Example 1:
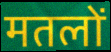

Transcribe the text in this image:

मतलों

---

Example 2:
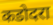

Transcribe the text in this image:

कडोदरा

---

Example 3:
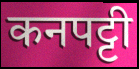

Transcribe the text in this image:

कनपट्टी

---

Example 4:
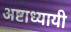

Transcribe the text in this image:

अष्टाध्यायी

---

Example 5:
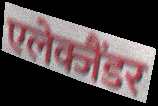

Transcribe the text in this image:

एलेक्जैंडर